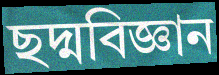
ছদ্মবিজ্ঞান